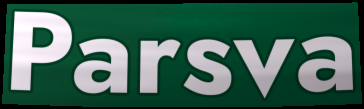
Parsva